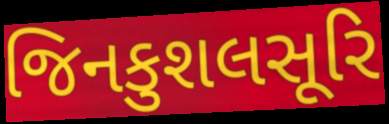
જિનકુશલસૂરિ